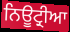
ਨਿਊਟ੍ਰੀਆ